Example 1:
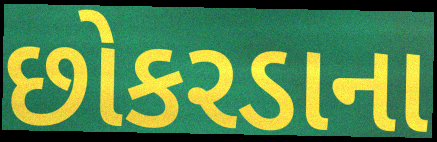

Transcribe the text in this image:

છોકરડાના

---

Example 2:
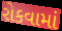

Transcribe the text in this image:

રોકવામાં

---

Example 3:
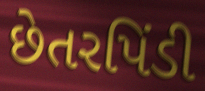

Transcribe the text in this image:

છેતરપિંડી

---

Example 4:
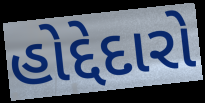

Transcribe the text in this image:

હોદ્દેદારો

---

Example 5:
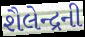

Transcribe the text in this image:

શૈલેન્દ્રની